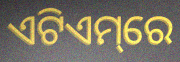
ଏଟିଏମ୍‌ରେ